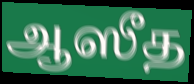
ஆஸீத